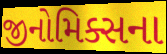
જીનોમિક્સના